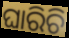
ଘାରିଚି